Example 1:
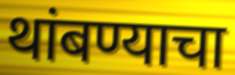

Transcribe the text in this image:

थांबण्याचा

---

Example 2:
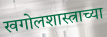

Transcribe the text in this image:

खगोलशास्त्राच्या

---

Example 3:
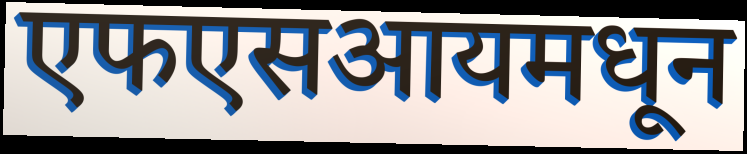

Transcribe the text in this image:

एफएसआयमधून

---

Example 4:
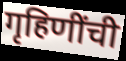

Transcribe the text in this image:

गृहिणींची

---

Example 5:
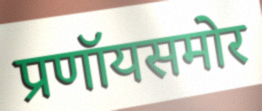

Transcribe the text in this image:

प्रणॉयसमोर